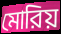
মোরিয়